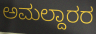
ಅಮಲ್ದಾರರ